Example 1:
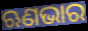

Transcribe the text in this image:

ଋଣଭାର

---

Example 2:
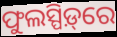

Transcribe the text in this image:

ଫୁଲସ୍ପିଡ଼୍‌ରେ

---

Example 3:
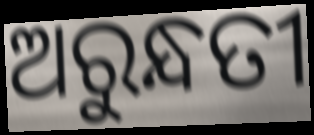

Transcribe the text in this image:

ଅରୁନ୍ଧତୀ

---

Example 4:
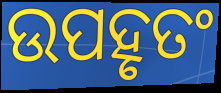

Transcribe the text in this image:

ଉପହୃତଂ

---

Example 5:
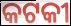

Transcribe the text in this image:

କଟକୀ